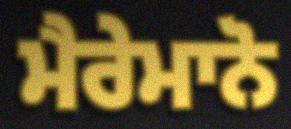
ਮੈਰੇਮਾਨੋ